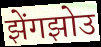
झेंगझोउ